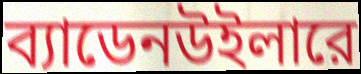
ব্যাডেনউইলারে